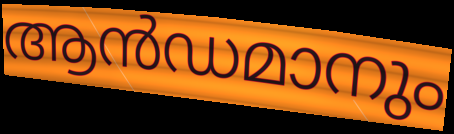
ആൻഡമാനും